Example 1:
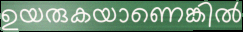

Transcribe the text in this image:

ഉയരുകയാണെങ്കിൽ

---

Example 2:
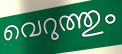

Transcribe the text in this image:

വെറുത്തും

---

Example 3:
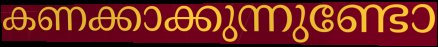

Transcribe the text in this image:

കണക്കാക്കുന്നുണ്ടോ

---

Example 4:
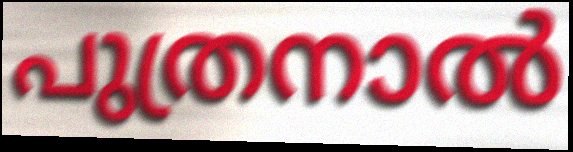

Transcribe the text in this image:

പുത്രനാൽ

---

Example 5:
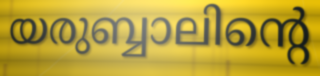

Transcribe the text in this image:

യരുബ്ബാലിന്റെ